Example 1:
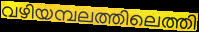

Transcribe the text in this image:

വഴിയമ്പലത്തിലെത്തി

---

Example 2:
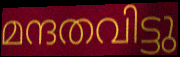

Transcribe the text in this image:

മന്ദതവിട്ടു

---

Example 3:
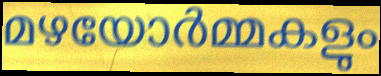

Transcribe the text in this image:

മഴയോർമ്മകളും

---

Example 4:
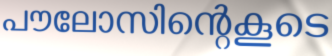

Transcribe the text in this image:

പൗലോസിന്റെകൂടെ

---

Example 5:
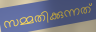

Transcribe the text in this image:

സമ്മതിക്കുന്നത്